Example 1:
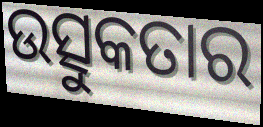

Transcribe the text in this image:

ଉତ୍ସୁକତାର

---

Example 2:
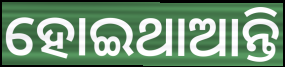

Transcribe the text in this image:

ହୋଇଥାଆନ୍ତି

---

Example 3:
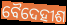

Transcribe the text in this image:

ବୈଦେହୀଶ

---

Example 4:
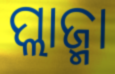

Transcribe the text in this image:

ପ୍ଲାଜ୍ମା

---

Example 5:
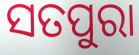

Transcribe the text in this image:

ସତପୁରା